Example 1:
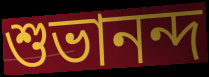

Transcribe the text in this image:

শুভানন্দ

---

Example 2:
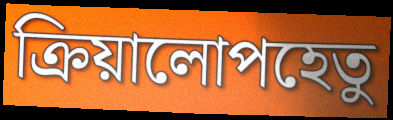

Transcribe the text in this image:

ক্রিয়ালোপহেতু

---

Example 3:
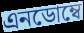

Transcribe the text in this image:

এনডোম্বে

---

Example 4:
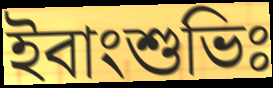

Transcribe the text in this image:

ইবাংশুভিঃ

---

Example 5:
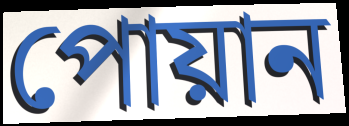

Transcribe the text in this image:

পোয়ান